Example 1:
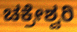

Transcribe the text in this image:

ಚಕ್ರೇಶ್ವರಿ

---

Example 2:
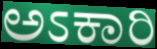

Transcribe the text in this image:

ಅಽಕಾರಿ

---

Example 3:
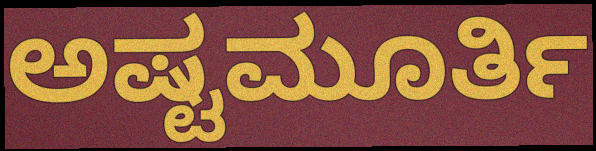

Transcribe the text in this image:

ಅಷ್ಟಮೂರ್ತಿ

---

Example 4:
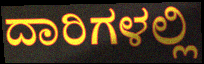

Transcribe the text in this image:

ದಾರಿಗಳಲ್ಲಿ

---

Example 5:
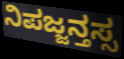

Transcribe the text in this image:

ನಿಪಜ್ಜನ್ತಸ್ಸ